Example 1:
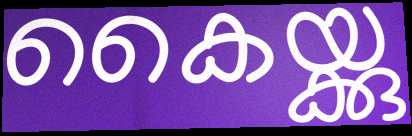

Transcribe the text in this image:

കൈയ്ക്കു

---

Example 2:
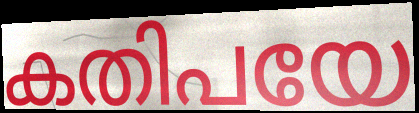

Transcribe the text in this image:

കതിപയേ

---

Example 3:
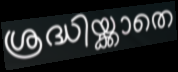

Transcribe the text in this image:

ശ്രദ്ധിയ്ക്കാതെ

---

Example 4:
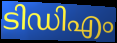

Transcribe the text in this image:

ടിഡിഎം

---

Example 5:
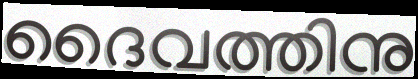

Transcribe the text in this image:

ദൈവത്തിനു